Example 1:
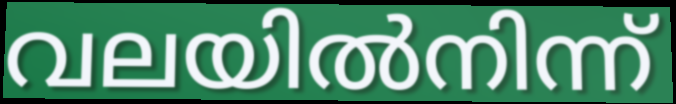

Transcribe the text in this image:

വലയിൽനിന്ന്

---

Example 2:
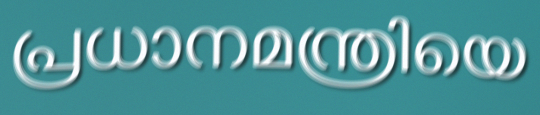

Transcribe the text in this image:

പ്രധാനമന്ത്രിയെ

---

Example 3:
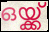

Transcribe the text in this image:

ഒയ്ക്ക്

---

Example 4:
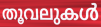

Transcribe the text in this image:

തൂവലുകൾ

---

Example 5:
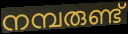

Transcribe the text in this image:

നമ്പരുണ്ട്